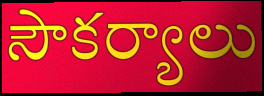
సౌకర్యాలు